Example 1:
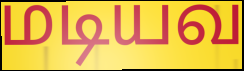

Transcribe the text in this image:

மடியவ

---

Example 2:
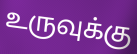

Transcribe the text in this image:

உருவுக்கு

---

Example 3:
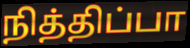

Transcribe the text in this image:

நித்திப்பா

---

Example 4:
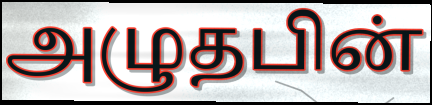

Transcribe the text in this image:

அழுதபின்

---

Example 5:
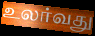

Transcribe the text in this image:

உலர்வது